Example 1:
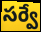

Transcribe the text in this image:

సర్వే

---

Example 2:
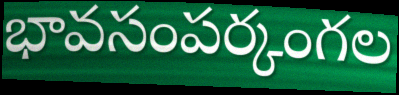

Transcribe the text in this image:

భావసంపర్కంగల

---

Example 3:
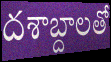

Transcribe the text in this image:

దశాబ్దాలతో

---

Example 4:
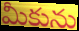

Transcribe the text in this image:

మీకును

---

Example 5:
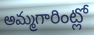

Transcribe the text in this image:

అమ్మగారింట్లో